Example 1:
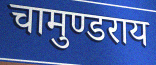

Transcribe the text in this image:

चामुण्डराय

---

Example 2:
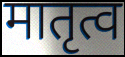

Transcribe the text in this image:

मातृत्व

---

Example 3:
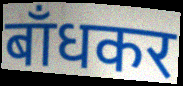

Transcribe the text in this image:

बाँधकर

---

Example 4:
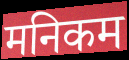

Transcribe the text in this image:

मनिकम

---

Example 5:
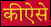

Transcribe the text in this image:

कीऐसे